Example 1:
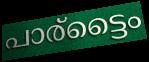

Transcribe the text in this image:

പാര്ട്ടൈം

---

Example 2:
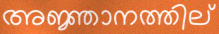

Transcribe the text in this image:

അജ്ഞാനത്തില്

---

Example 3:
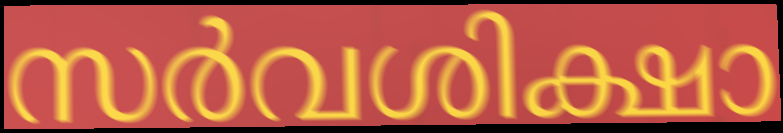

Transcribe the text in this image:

സർവശിക്ഷാ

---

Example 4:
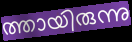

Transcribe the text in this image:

ത്തായിരുന്നു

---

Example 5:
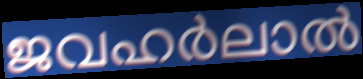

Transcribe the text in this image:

ജവഹർലാൽ